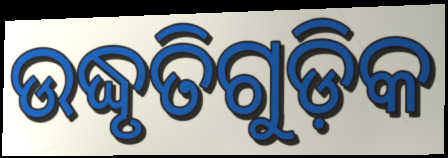
ଉଦ୍ଧୃତିଗୁଡ଼ିକ